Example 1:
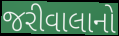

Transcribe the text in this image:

જરીવાલાનો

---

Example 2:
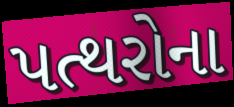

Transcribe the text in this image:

પત્થરોના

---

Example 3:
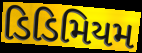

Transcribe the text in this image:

ડિડિમિયમ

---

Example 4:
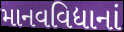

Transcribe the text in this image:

માનવવિદ્યાનાં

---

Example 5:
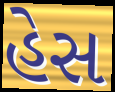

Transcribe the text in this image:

હેસ